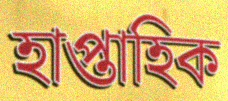
হাপ্তাহিক